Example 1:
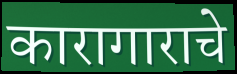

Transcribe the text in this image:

कारागाराचे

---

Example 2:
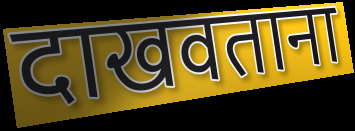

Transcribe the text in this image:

दाखवताना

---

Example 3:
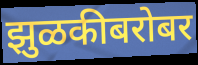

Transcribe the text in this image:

झुळकीबरोबर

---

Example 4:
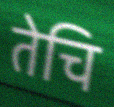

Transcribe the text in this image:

तेचि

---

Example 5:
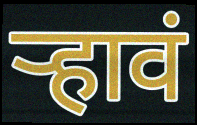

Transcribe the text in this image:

र्‍हावं